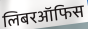
लिबरऑफिस